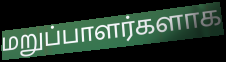
மறுப்பாளர்களாக